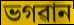
ভগৱান